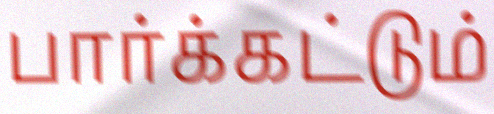
பார்க்கட்டும்